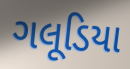
ગલૂડિયા